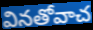
వినతోవాచ